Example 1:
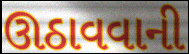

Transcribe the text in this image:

ઊઠાવવાની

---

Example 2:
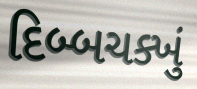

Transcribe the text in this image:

દિબ્બચક્ખું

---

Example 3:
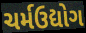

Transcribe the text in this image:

ચર્મઉદ્યોગ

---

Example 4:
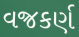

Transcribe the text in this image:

વજ્રકર્ણ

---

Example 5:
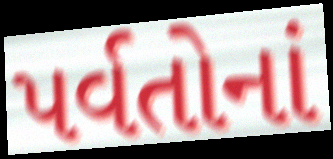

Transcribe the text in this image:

પર્વતોનાં